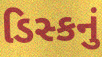
ડિસ્કનું